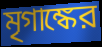
মৃগাঙ্কের